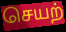
செயற்